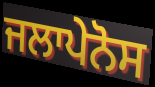
ਜਲਾਪੇਨੋਸ